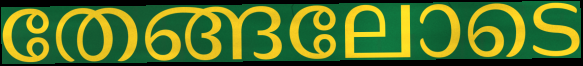
തേങ്ങലോടെ